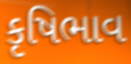
કૃષિભાવ